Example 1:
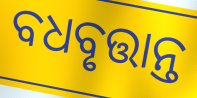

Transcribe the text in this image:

ବଧବୃତ୍ତାନ୍ତ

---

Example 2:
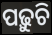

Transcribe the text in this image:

ପଢ଼ୁଚି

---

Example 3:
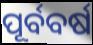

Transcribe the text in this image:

ପୂର୍ବବର୍ଷ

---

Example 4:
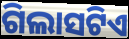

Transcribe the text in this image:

ଗିଲାସଟିଏ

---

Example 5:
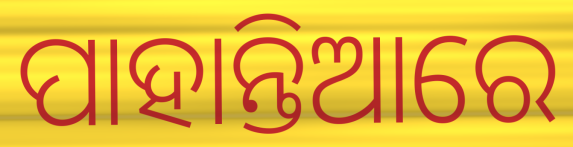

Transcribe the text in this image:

ପାହାନ୍ତିଆରେ